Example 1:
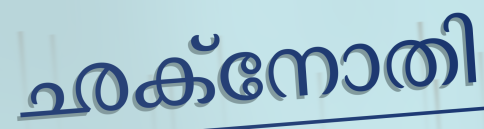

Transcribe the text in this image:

ഛക്നോതി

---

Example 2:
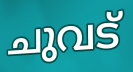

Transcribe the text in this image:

ചുവട്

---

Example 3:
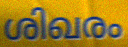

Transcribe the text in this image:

ശിഖരം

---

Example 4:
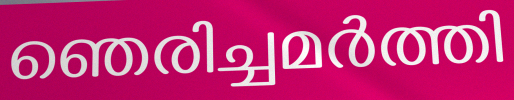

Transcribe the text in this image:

ഞെരിച്ചമർത്തി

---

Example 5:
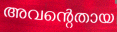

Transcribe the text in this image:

അവന്റെതായ